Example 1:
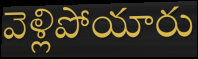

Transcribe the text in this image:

వెళ్లిపోయారు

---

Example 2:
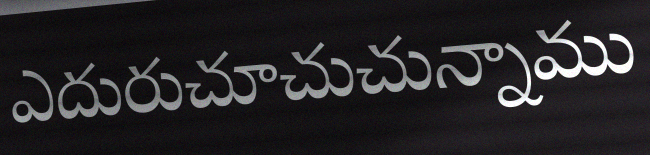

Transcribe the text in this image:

ఎదురుచూచుచున్నాము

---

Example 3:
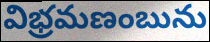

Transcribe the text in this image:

విభ్రమణంబును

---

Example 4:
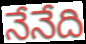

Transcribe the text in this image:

నేనేది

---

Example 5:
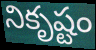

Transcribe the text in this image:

నికృష్టం